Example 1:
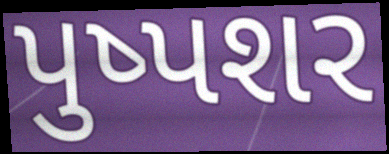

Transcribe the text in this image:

પુષ્પશર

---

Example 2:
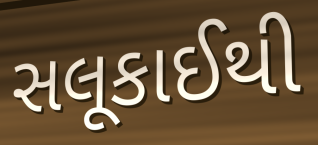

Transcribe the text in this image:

સલૂકાઈથી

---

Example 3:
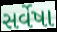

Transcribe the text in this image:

સર્વેષા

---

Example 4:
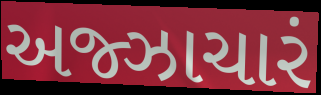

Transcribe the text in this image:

અજ્ઝાચારં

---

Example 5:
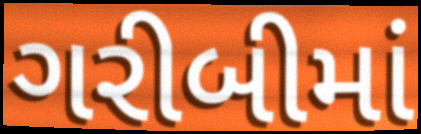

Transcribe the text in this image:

ગરીબીમાં